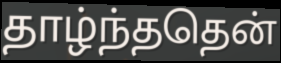
தாழ்ந்ததென்